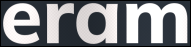
eram